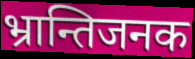
भ्रान्तिजनक